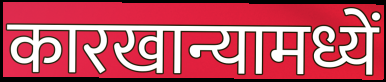
कारखान्यामध्यें